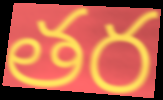
తర